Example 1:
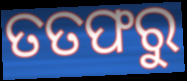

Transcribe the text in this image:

ତତଫରୁ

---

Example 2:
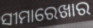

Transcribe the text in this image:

ସୀମାରେଖାର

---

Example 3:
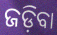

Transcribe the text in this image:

ଜଡ଼ିବା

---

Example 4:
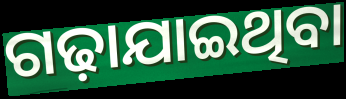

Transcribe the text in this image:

ଗଢ଼ାଯାଇଥିବା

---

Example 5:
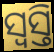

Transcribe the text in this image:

ସ୍ଵସ୍ତି